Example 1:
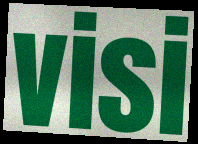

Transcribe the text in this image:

visi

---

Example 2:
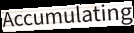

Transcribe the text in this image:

Accumulating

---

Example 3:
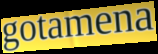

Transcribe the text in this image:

gotamena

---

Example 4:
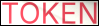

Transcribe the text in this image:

TOKEN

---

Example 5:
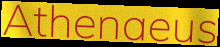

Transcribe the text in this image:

Athenaeus